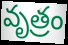
వృత్రం